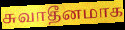
சுவாதீனமாக